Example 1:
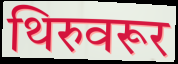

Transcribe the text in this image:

थिरुवरूर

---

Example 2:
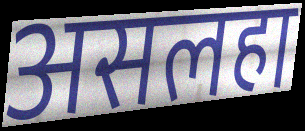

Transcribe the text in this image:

असलहा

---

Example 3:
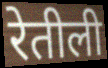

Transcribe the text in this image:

रेतीली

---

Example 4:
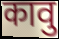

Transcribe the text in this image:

कावु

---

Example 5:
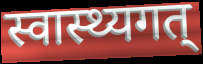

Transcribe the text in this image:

स्वास्थ्यगत्